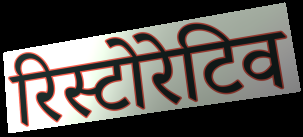
रिस्टोरेटिव